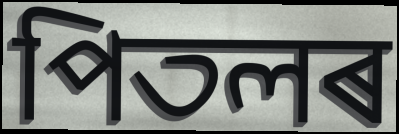
পিতলৰ